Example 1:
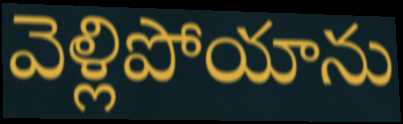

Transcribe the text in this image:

వెళ్లిపోయాను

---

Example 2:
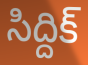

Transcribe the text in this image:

సిద్దిక్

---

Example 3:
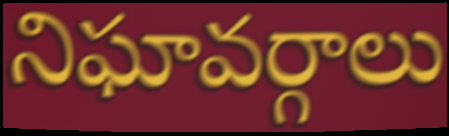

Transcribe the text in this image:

నిఘావర్గాలు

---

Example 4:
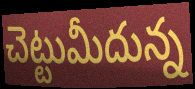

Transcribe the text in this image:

చెట్టుమీదున్న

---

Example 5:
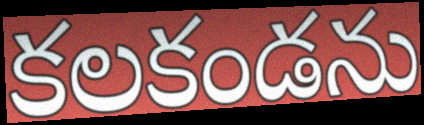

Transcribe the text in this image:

కలకండను